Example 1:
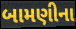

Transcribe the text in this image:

બામણીના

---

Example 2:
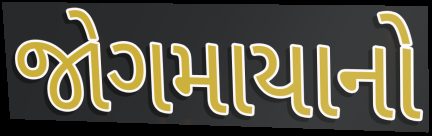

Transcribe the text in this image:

જોગમાયાનો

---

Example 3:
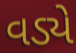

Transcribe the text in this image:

વડ્યે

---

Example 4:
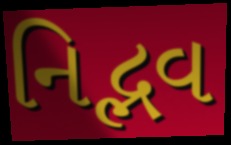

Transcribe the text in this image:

નિદ્ભવ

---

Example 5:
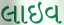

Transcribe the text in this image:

લાઇવ